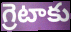
గ్రెటాకు